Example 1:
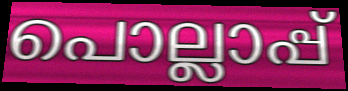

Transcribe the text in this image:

പൊല്ലാപ്പ്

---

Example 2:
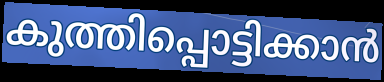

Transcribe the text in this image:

കുത്തിപ്പൊട്ടിക്കാൻ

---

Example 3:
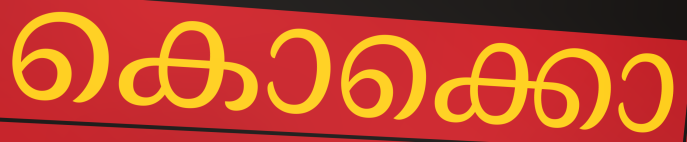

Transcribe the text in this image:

കൊക്കൊ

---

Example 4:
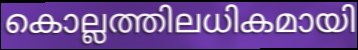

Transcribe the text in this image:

കൊല്ലത്തിലധികമായി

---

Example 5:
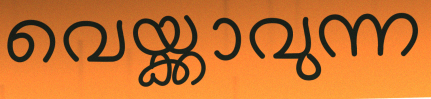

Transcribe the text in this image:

വെയ്ക്കാവുന്ന